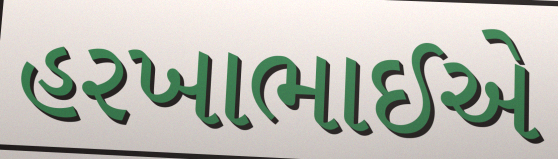
હરખાભાઈએ